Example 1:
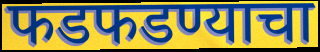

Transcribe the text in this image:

फडफडण्याचा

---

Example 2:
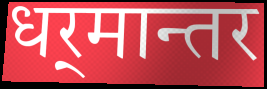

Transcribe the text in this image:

धर्मान्तर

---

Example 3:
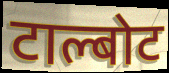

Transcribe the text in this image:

टाल्बोट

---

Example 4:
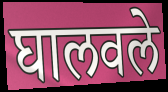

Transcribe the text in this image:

घालवले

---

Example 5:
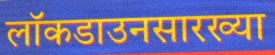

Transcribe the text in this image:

लॉकडाउनसारख्या